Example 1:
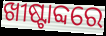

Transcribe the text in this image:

ଖୀଷ୍ଟାବ୍ଦରେ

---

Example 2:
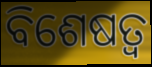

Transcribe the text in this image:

ବିଶେଷତ୍ଵ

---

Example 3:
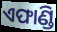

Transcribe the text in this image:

ଏଫାଣ୍ଡି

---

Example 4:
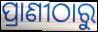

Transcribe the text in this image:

ପ୍ରାଣୀଠାରୁ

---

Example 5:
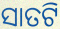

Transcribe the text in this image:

ସାତଟି